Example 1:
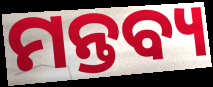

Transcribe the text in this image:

ମନ୍ତବ୍ୟ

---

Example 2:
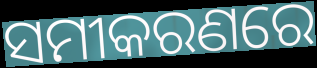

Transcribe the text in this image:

ସମୀକରଣରେ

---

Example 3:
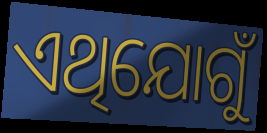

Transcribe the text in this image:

ଏଥିଯୋଗୁଁ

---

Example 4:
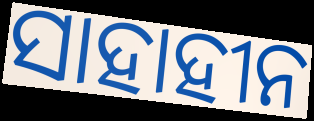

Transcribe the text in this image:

ସାହାହୀନ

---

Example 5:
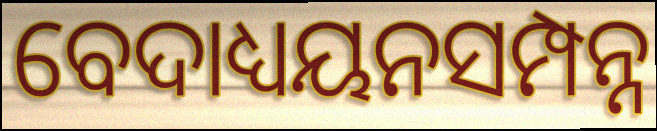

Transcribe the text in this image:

ବେଦାଧ୍ୟୟନସମ୍ପନ୍ନ